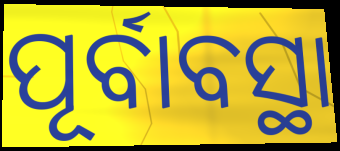
ପୂର୍ବାବସ୍ଥା